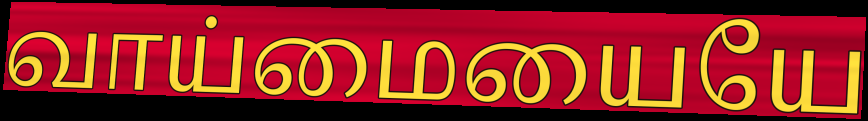
வாய்மையையே